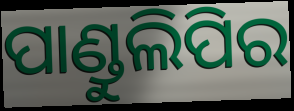
ପାଣ୍ଡୁଲିପିର